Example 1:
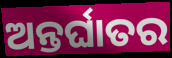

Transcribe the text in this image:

ଅନ୍ତର୍ଘାତର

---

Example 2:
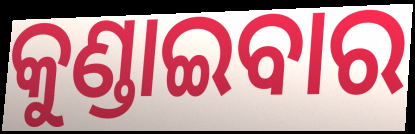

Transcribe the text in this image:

କୁଣ୍ଡାଇବାର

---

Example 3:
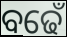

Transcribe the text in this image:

ବଢେଁ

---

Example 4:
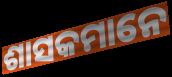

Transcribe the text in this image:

ଶାସକମାନେ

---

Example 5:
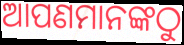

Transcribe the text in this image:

ଆପଣମାନଙ୍କଠୁ